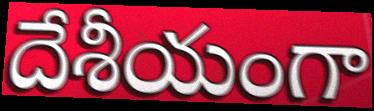
దేశీయంగా